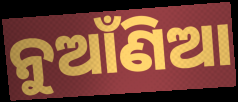
ନୁଆଁଣିଆ